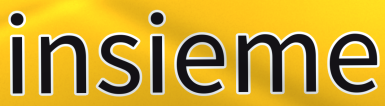
insieme